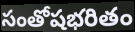
సంతోషభరితం